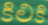
కిలికి